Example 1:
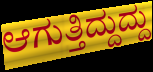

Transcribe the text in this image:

ಆಗುತ್ತಿದ್ದುದ್ದು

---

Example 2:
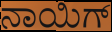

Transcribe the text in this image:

ನಾಯಿಗ್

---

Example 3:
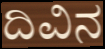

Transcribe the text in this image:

ದಿವಿನ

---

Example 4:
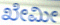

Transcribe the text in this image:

ಖೇಮೀ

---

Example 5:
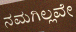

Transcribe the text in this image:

ನಮಗಿಲ್ಲವೇ